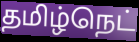
தமிழ்நெட்